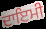
ਦਾਇਮੀ